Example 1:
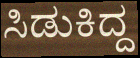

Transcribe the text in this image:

ಸಿಡುಕಿದ್ದ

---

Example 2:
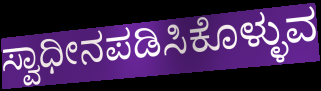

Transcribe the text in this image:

ಸ್ವಾಧೀನಪಡಿಸಿಕೊಳ್ಳುವ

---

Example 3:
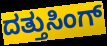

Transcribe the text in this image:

ದತ್ತುಸಿಂಗ್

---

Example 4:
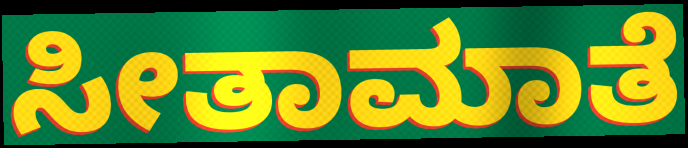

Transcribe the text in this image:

ಸೀತಾಮಾತೆ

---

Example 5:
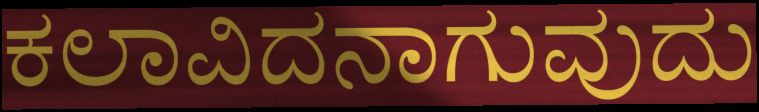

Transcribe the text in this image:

ಕಲಾವಿದನಾಗುವುದು